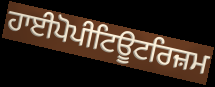
ਹਾਈਪੋਪੀਟਿਊਟਰਿਜ਼ਮ